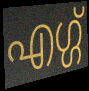
എഗ്ഗ്